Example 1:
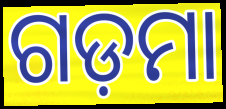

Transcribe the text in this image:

ଗଡ଼ମା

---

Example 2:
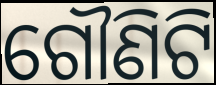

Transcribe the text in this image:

ଗୌଣିଟି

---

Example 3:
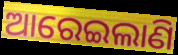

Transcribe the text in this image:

ଆରେଇଲାଣି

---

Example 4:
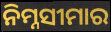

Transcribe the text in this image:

ନିମ୍ନସୀମାର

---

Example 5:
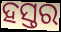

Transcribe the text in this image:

ହସ୍ତର